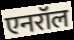
एनरॉल